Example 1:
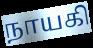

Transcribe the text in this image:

நாயகி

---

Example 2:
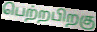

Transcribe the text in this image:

பெற்றபிறகு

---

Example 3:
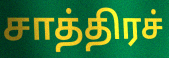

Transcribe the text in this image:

சாத்திரச்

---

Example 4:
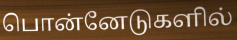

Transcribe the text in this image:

பொன்னேடுகளில்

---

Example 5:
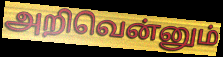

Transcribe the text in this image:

அறிவென்னும்